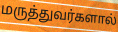
மருத்துவர்களால்